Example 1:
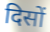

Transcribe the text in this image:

दिसों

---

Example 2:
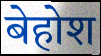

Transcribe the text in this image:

बेहोश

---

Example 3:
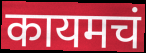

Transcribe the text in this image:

कायमचं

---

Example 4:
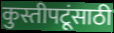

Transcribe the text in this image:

कुस्तीपटूंसाठी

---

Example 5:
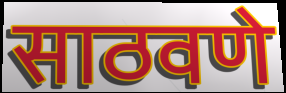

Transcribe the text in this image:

साठवणे